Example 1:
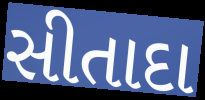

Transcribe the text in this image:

સીતાદા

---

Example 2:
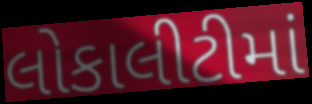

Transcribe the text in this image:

લોકાલીટીમાં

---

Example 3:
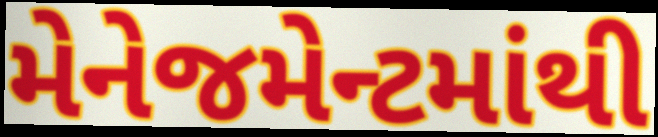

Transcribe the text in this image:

મેનેજમેન્ટમાંથી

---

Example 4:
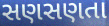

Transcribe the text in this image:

સણસણતા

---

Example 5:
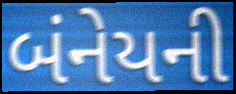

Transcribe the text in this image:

બંનેયની